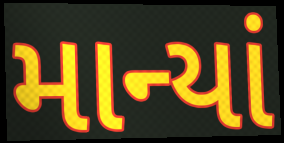
માન્યાં